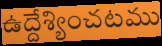
ఉద్దేశ్యించటము